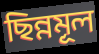
ছিন্নমূল